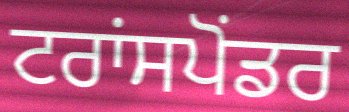
ਟਰਾਂਸਪੋਂਡਰ